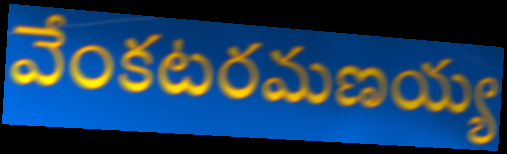
వేంకటరమణయ్య